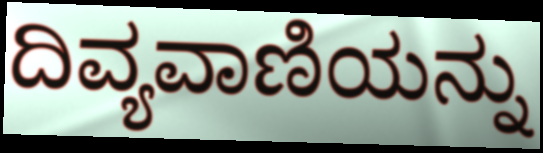
ದಿವ್ಯವಾಣಿಯನ್ನು